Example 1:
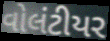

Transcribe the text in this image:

વોલંટીયર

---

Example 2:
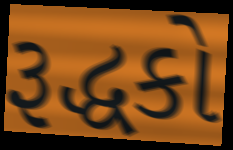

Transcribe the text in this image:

રૂદ્ધકો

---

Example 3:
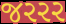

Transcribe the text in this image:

જરરર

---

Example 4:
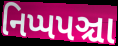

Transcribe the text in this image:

નિપ્પપઞ્ચા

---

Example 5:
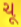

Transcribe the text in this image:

ચૂ